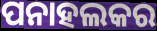
ପନାହଲକର